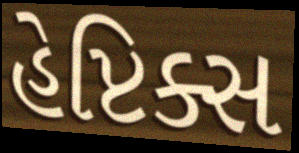
હેપ્ટિક્સ